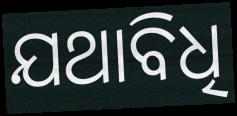
ଯଥାବିଧି